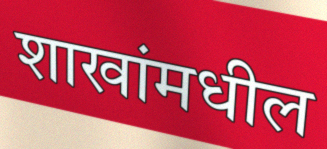
शाखांमधील